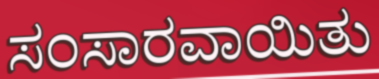
ಸಂಸಾರವಾಯಿತು